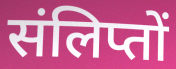
संलिप्तों